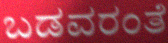
ಬಡವರಂತೆ